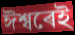
ঈশ্বৰেই